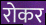
रोकर